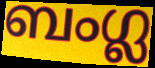
ബംഗ്ല